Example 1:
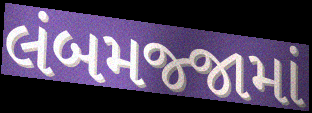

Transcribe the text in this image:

લંબમજ્જામાં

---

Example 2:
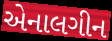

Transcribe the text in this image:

એનાલગીન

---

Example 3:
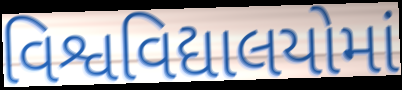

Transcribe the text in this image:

વિશ્વવિદ્યાલયોમાં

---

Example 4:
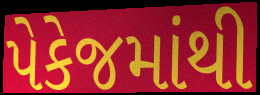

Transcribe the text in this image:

પેકેજમાંથી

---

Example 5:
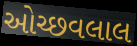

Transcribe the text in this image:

ઓચ્છવલાલ